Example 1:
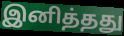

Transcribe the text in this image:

இனித்தது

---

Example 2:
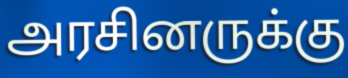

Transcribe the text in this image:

அரசினருக்கு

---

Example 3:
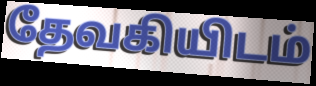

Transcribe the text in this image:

தேவகியிடம்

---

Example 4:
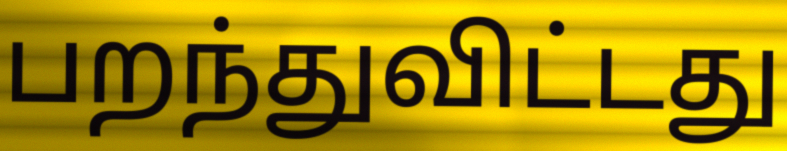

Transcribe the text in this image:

பறந்துவிட்டது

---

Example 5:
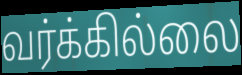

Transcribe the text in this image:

வர்க்கில்லை